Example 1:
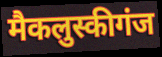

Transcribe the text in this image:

मैकलुस्कीगंज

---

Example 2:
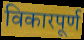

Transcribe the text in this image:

विकारपूर्ण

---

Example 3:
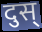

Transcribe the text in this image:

दुस्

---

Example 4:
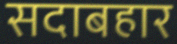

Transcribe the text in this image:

सदाबहार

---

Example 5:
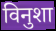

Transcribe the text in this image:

विनुशा